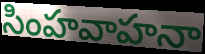
సింహవాహనా